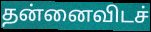
தன்னைவிடச்